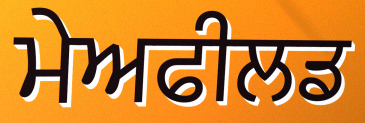
ਮੇਅਫੀਲਡ